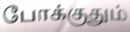
போக்குதும்